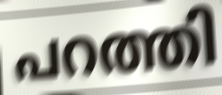
പറത്തി